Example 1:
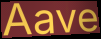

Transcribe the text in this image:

Aave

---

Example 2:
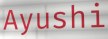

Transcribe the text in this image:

Ayushi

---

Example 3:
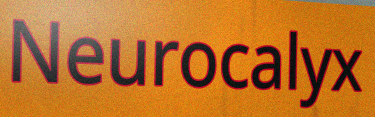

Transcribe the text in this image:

Neurocalyx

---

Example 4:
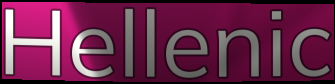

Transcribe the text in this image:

Hellenic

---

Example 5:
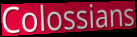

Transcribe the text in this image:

Colossians